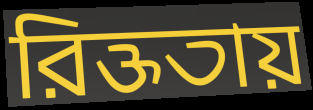
রিক্ততায়